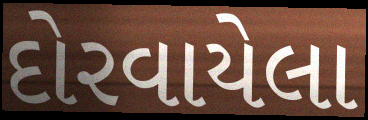
દોરવાયેલા